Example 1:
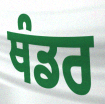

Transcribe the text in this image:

ਥੰਡਰ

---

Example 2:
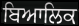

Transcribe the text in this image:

ਬਿਆਲਿਕ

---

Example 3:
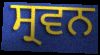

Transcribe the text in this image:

ਸ੍ਰਵਨ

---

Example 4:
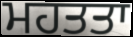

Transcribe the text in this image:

ਮਹਤਤਾ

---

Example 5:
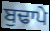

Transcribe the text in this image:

ਬੁਢਾਪੇ